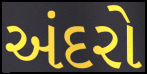
અંદરો